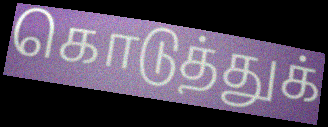
கொடுத்துக்